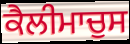
ਕੈਲੀਮਾਚੁਸ